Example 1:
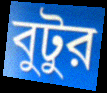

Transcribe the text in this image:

বুটুর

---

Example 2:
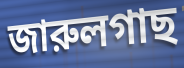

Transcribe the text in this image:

জারুলগাছ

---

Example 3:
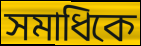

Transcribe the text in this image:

সমাধিকে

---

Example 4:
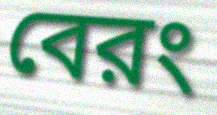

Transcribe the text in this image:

বেরং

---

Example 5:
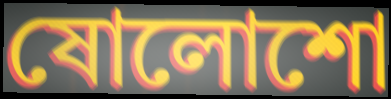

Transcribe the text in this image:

ষোলোশো